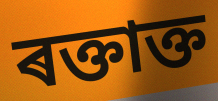
ৰক্তাক্ত